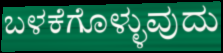
ಬಳಕೆಗೊಳ್ಳುವುದು